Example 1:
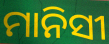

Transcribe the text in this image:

ମାନିସୀ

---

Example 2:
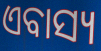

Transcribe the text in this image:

ଏବାସ୍ୟ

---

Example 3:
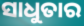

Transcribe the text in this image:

ସାଧୁତାର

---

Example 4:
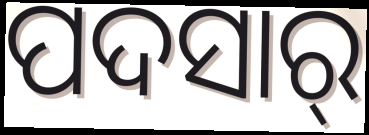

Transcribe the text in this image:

ପଦସାର୍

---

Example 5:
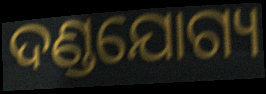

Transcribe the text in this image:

ଦଣ୍ଡଯୋଗ୍ୟ